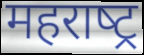
महराष्‍ट्र